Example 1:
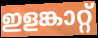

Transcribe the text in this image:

ഇളങ്കാറ്റ്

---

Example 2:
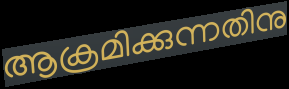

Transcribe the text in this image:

ആക്രമിക്കുന്നതിനു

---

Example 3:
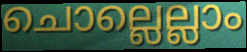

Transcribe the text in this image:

ചൊല്ലെല്ലാം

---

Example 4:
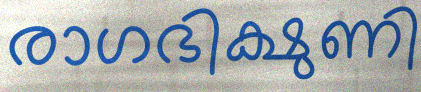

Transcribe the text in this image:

രാഗഭിക്ഷുണി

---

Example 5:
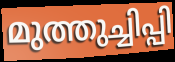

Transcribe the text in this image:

മുത്തുച്ചിപ്പി